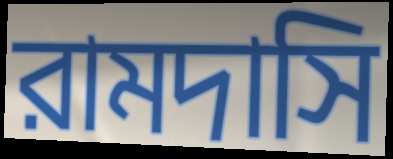
রামদাসি